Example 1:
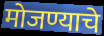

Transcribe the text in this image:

मोजण्याचे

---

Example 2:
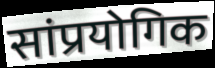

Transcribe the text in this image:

सांप्रयोगिक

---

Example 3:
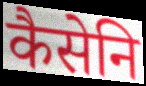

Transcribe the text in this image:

कैसेनि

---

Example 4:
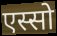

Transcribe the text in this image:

एस्सो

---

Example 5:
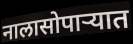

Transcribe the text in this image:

नालासोपाऱ्यात